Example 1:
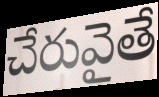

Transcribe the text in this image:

చేరువైతే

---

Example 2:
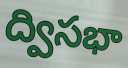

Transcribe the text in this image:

ద్విసభా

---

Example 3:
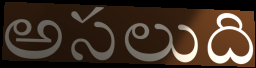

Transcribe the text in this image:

అసలుది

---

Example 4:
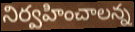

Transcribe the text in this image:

నిర్వహించాలన్న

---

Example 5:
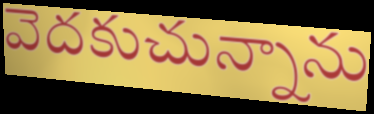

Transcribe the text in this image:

వెదకుచున్నాను